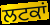
ਲਟਕਾਂ